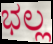
ಭಲ್ಲ